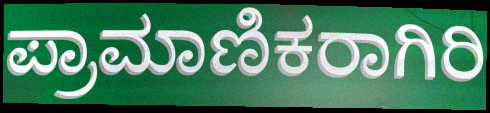
ಪ್ರಾಮಾಣಿಕರಾಗಿರಿ